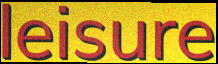
leisure